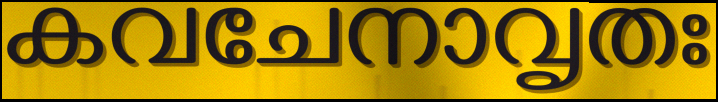
കവചേനാവൃതഃ